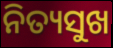
ନିତ୍ୟସୁଖ